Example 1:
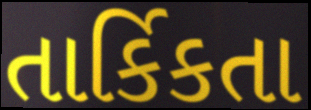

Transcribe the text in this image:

તાર્કિકતા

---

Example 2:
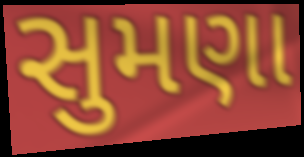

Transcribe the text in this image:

સુમણા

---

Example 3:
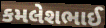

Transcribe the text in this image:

કમલેશભાઈ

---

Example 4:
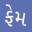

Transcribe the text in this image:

ફેમ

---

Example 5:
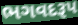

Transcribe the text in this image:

ભગવદરૂપ